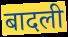
बादली